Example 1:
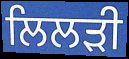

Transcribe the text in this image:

ਲਿਲੜੀ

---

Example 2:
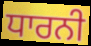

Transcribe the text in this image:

ਧਾਰਨੀ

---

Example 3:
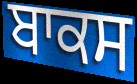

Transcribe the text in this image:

ਬਾਕਸ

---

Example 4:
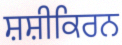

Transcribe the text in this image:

ਸ਼ਸ਼ੀਕਿਰਨ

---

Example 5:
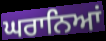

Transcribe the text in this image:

ਘਰਾਨਿਆਂ